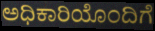
ಅಧಿಕಾರಿಯೊಂದಿಗೆ